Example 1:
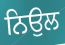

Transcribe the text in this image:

ਨਿਉਲ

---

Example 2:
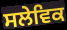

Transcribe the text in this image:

ਸਲੇਵਿਕ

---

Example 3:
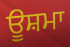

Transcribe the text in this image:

ਊਸ਼ਮਾ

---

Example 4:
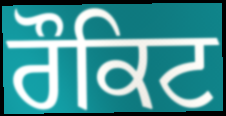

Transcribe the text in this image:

ਰੌਕਿਟ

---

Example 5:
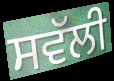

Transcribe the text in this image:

ਸਵੱਲੀ